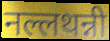
नल्लथन्नी